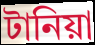
টানিয়া